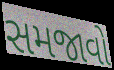
સમજાવો